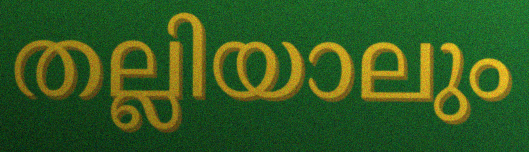
തല്ലിയാലും